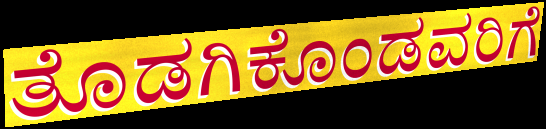
ತೊಡಗಿಕೊಂಡವರಿಗೆ